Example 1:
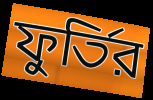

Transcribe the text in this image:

ফুর্তির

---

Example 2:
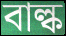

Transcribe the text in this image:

বাল্ক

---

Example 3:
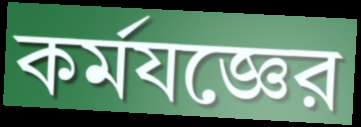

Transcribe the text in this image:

কর্মযজ্ঞের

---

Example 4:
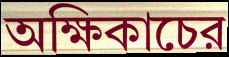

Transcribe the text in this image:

অক্ষিকাচের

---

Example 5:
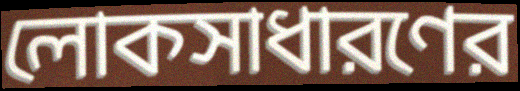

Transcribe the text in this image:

লোকসাধারণের